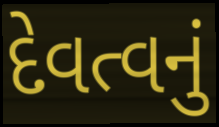
દેવત્વનું